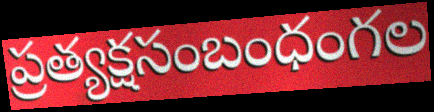
ప్రత్యక్షసంబంధంగల